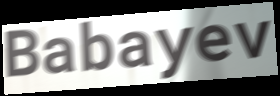
Babayev